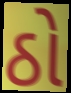
ઠો